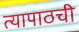
त्यापाठची